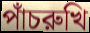
পাঁচরুখি